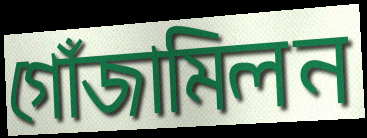
গোঁজামিলন